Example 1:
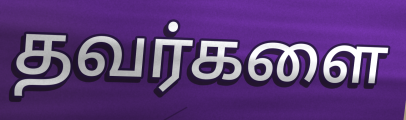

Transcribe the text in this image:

தவர்களை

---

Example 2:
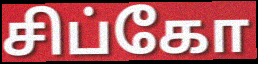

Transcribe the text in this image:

சிப்கோ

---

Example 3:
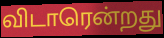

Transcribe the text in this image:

விடாரென்றது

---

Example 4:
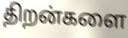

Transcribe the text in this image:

திறன்களை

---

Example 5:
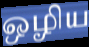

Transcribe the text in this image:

ஒழிய